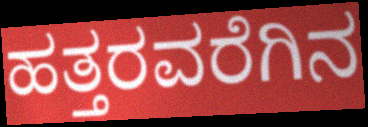
ಹತ್ತರವರೆಗಿನ